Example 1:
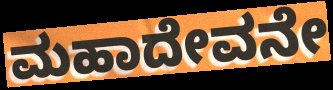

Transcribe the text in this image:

ಮಹಾದೇವನೇ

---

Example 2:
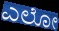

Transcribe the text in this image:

ಎಲೋ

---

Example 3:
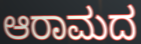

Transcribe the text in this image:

ಆರಾಮದ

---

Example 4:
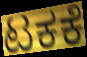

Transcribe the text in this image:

ಟಕಕೆ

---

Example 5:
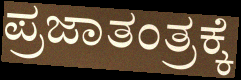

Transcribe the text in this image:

ಪ್ರಜಾತಂತ್ರಕ್ಕೆ